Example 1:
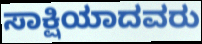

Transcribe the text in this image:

ಸಾಕ್ಷಿಯಾದವರು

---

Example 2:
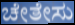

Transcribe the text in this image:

ಚೇತೇಸು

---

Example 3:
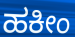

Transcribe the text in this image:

ಹಕೀಂ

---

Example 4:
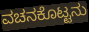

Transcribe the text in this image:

ವಚನಕೊಟ್ಟನು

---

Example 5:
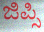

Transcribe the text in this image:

ಜಿಪ್ಸಿ